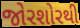
જોરશોરથી